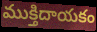
ముక్తిదాయకం